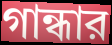
গান্ধার